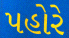
પહોરે